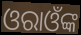
ଓରାଓଁଙ୍କ